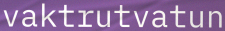
vaktrutvatun